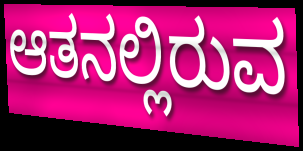
ಆತನಲ್ಲಿರುವ